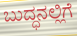
ಬುದ್ಧನಲ್ಲಿಗೆ